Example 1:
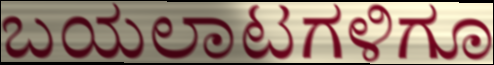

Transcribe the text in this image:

ಬಯಲಾಟಗಳಿಗೂ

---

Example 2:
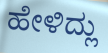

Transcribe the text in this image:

ಹೇಳಿದ್ಲು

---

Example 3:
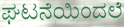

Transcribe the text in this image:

ಘಟನೆಯಿಂದಲೆ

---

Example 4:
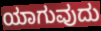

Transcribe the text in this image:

ಯಾಗುವುದು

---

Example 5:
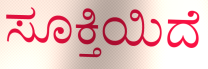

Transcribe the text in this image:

ಸೂಕ್ತಿಯಿದೆ